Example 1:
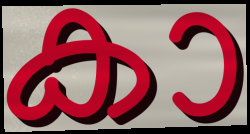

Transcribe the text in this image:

കാ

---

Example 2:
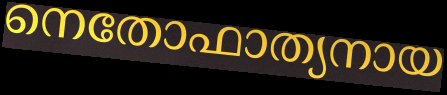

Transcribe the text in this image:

നെതോഫാത്യനായ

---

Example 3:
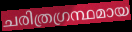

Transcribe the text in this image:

ചരിത്രഗ്രന്ഥമായ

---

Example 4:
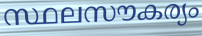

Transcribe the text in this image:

സ്ഥലസൗകര്യം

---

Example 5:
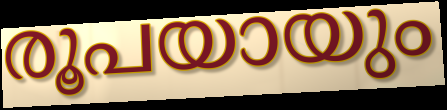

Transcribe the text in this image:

രൂപയായും